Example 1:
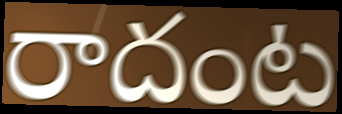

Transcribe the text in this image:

రాదంట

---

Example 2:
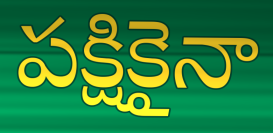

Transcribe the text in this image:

పక్షికైనా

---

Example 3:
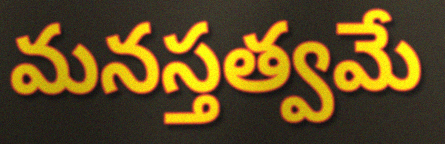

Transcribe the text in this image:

మనస్తత్వమే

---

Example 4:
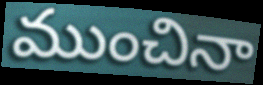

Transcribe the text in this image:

ముంచినా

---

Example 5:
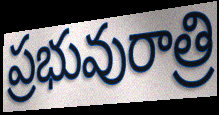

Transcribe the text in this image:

ప్రభువురాత్రి